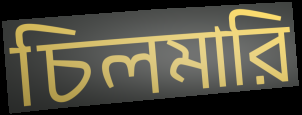
চিলমারি